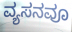
ವ್ಯಸನವೂ